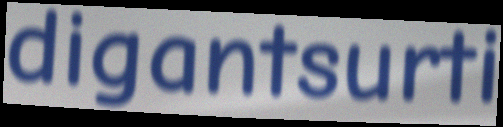
digantsurti